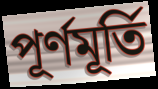
পূর্ণমূর্তি